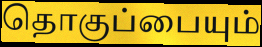
தொகுப்பையும்